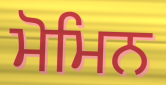
ਮੋਮਿਨ